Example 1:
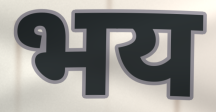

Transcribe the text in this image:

भय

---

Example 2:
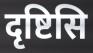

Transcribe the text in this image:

दृष्टिसि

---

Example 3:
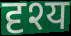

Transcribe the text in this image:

दृश्य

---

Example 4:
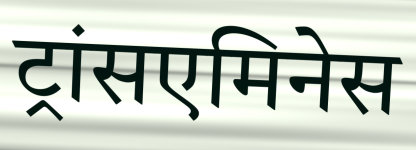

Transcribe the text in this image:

ट्रांसएमिनेस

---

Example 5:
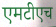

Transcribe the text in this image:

एमटीएच